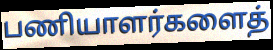
பணியாளர்களைத்